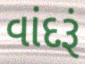
વાંદરૂં